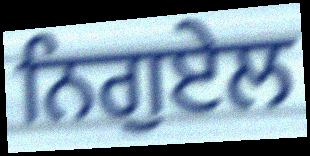
ਨਿਗੁਏਲ